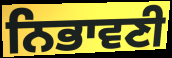
ਨਿਭਾਵਣੀ